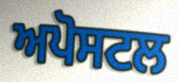
ਅਪੋਸਟਲ